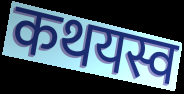
कथयस्व